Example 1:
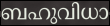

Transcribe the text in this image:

ബഹുവിധാ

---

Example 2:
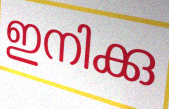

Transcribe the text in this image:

ഇനിക്കു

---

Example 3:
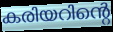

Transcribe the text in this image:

കരിയറിന്റെ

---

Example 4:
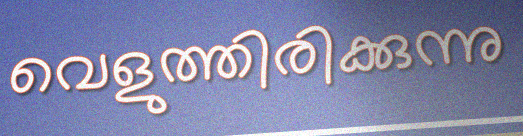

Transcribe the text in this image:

വെളുത്തിരിക്കുന്നു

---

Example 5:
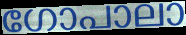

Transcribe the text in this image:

ഗോപാലാ